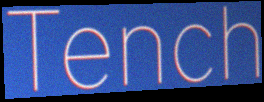
Tench